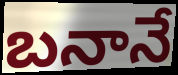
బనానే